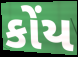
કોંય